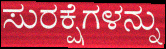
ಸುರಕ್ಷೆಗಳನ್ನು